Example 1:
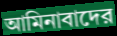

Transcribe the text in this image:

আমিনাবাদের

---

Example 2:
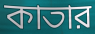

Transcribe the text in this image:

কাতার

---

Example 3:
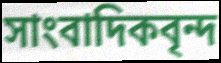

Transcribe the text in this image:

সাংবাদিকবৃন্দ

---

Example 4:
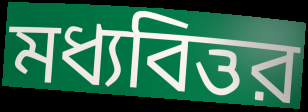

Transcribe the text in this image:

মধ্যবিত্তর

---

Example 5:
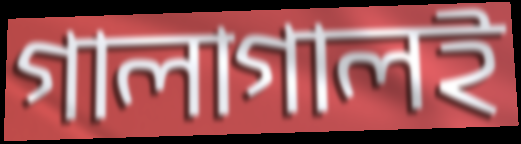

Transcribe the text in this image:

গালাগালই